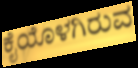
ಕೈಯೊಳಗಿರುವ